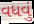
વધવું